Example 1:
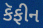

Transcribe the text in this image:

કૅફીન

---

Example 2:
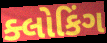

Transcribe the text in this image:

ક્લોકિંગ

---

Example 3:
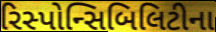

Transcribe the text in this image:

રિસ્પોન્સિબિલિટીના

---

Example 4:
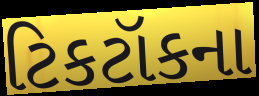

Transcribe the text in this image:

ટિકટૉકના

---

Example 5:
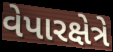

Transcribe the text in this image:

વેપારક્ષેત્રે